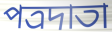
পত্রদাতা